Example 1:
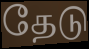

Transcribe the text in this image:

தேடு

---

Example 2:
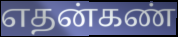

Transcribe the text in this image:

எதன்கண்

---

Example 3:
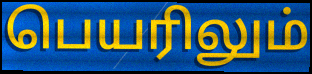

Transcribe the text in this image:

பெயரிலும்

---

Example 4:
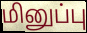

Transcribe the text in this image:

மினுப்பு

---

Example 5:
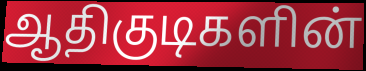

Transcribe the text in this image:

ஆதிகுடிகளின்